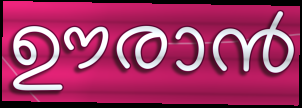
ഊരാൻ